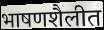
भाषणशैलीत